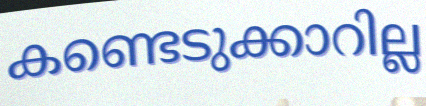
കണ്ടെടുക്കാറില്ല